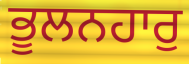
ਭੂਲਨਹਾਰੁ